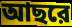
আছরে